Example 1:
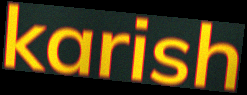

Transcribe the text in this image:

karish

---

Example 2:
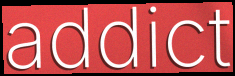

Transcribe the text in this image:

addict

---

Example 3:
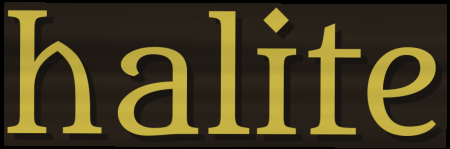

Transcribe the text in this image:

halite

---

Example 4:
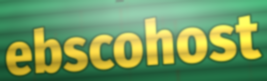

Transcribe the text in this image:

ebscohost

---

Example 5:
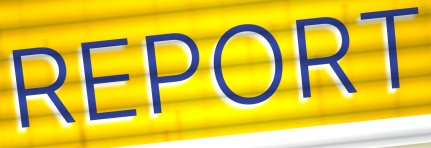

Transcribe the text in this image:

REPORT